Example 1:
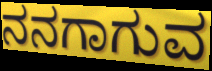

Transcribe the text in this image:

ನನಗಾಗುವ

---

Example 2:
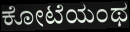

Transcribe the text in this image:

ಕೋಟೆಯಂಥ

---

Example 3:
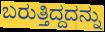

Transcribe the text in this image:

ಬರುತ್ತಿದ್ದದನ್ನು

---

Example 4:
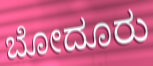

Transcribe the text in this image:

ಬೋದೂರು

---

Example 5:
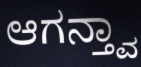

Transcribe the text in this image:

ಆಗನ್ತ್ವಾ